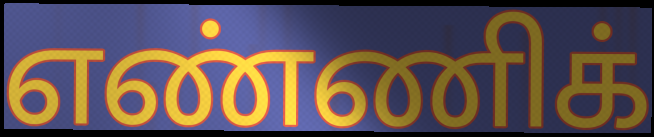
எண்ணிக்